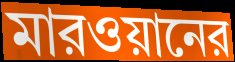
মারওয়ানের